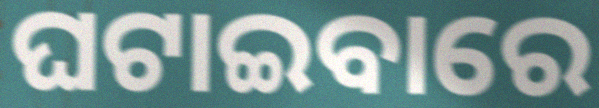
ଘଟାଇବାରେ